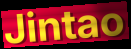
Jintao